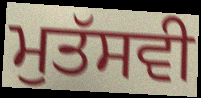
ਮੁਤੱਸਵੀ